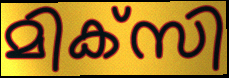
മിക്‌സി